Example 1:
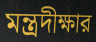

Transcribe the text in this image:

মন্ত্রদীক্ষার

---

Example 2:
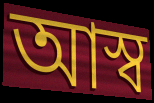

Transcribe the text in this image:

আস্ব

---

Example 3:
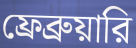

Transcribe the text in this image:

ফ্রেব্রুয়ারি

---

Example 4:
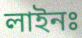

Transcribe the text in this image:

লাইনঃ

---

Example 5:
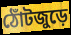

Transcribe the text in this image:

ঠোঁটজুড়ে